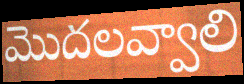
మొదలవ్వాలి